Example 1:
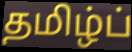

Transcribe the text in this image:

தமிழ்ப்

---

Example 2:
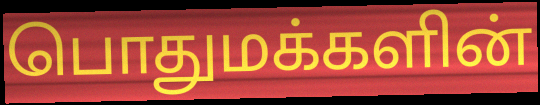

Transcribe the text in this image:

பொதுமக்களின்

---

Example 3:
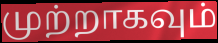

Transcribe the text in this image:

முற்றாகவும்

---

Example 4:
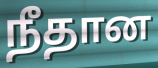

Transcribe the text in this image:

நீதான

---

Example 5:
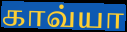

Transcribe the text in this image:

காவ்யா